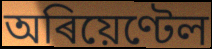
অৰিয়েণ্টেল